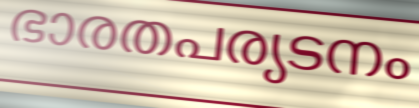
ഭാരതപര്യടനം